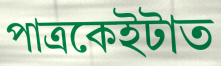
পাত্ৰকেইটাত